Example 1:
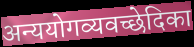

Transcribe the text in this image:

अन्ययोगव्यवच्छेदिका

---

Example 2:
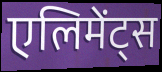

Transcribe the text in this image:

एलिमेंट्स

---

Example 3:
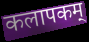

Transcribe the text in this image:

कलापकम्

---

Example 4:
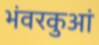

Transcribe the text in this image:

भंवरकुआं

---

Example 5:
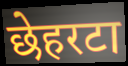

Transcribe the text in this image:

छेहरटा